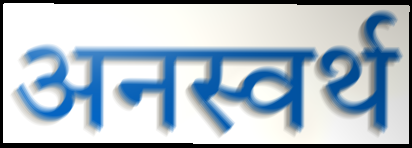
अनस्वर्थ